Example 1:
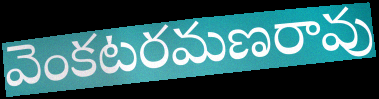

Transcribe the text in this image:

వెంకటరమణరావు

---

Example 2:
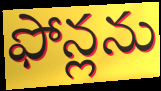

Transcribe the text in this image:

ఫోన్లను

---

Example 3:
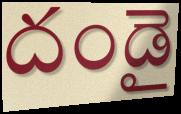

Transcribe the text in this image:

దండై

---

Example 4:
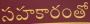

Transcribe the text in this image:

సహకారంతో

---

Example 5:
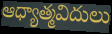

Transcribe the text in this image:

ఆధ్యాత్మవిదులు